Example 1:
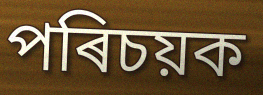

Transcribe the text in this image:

পৰিচয়ক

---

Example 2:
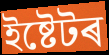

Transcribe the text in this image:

ইষ্টেটৰ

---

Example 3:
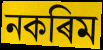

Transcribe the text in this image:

নকৰিম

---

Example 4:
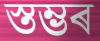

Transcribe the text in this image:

স্তম্ভৰ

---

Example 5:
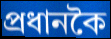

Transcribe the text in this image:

প্ৰধানকৈ